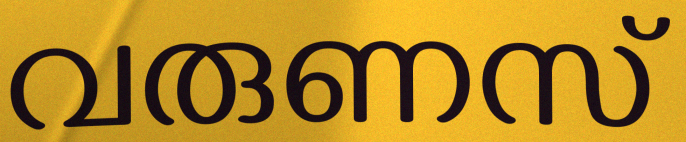
വരുണസ്